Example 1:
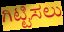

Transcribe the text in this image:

ಗಿಟ್ಟಿಸಲು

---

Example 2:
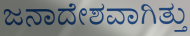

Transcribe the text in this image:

ಜನಾದೇಶವಾಗಿತ್ತು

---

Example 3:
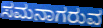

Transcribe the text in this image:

ಸಮನಾಗರುವ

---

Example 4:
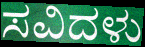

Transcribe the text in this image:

ಸವಿದಳು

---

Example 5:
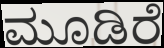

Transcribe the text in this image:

ಮೂಡಿರೆ